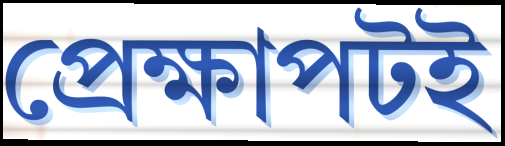
প্রেক্ষাপটই